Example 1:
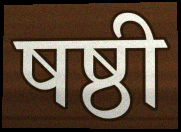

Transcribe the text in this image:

षष्ठी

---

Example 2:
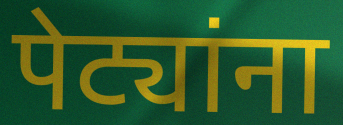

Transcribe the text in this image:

पेट्यांना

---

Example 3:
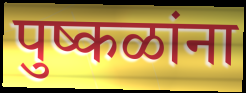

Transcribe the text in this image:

पुष्कळांना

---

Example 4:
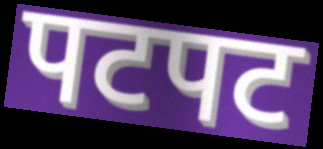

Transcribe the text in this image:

पटपट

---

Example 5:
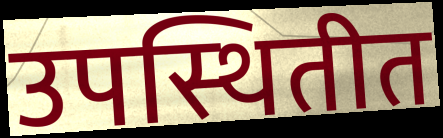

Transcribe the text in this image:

उपस्थितीत